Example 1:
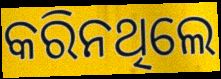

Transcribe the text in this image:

କରିନଥିଲେ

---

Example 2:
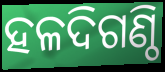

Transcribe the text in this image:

ହଳଦିଗଣ୍ଠି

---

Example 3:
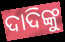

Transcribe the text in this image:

ଦାଦିଙ୍କୁ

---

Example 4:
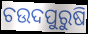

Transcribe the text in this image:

ଚଉଦପୁରୁଷି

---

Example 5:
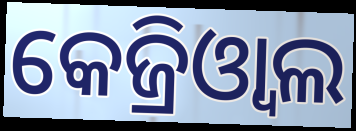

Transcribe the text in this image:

କେଜ୍ରିଓ୍ଵାଲ